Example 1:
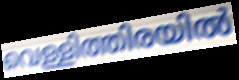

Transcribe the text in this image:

വെള്ളിത്തിരയിൽ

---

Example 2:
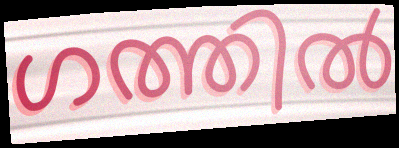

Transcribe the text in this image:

ഗത്തിൽ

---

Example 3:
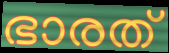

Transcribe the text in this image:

ഭാരത്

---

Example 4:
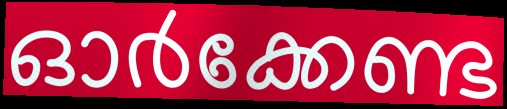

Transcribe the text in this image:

ഓർക്കേണ്ട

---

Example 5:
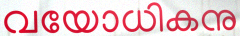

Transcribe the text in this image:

വയോധികനു